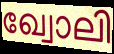
ഖ്വോലി